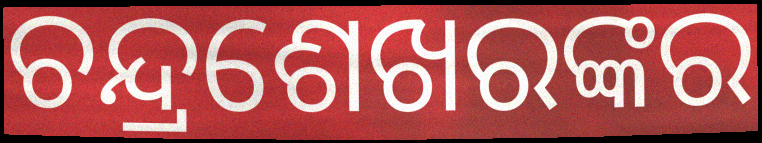
ଚନ୍ଦ୍ରଶେଖରଙ୍କର